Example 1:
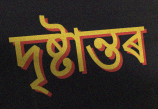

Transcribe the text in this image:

দৃষ্টান্তৰ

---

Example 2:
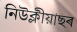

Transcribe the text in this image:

নিউক্লীয়াছৰ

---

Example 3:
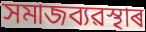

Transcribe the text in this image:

সমাজব্যৱস্থাৰ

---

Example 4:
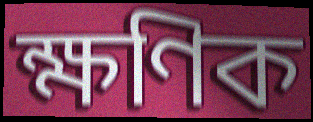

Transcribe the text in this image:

ক্ষণিক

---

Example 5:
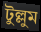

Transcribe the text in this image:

টুল্লুম